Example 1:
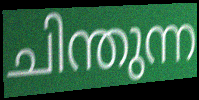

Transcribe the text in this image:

ചിന്തുന്ന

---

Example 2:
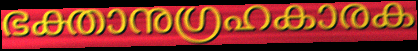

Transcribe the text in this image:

ഭക്താനുഗ്രഹകാരക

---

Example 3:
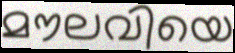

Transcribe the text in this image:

മൗലവിയെ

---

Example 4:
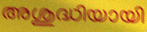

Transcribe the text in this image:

അശുദ്ധിയായി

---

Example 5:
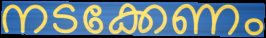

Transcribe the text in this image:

നടക്കേണം